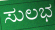
ಸುಲಭ